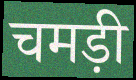
चमड़ी